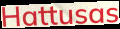
Hattusas